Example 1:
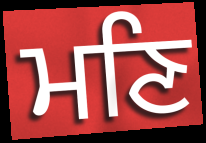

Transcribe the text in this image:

ਮਣਿ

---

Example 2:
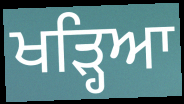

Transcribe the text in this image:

ਖੜ੍ਹਿਆ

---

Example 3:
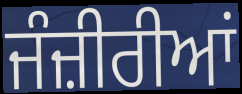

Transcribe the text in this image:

ਜੰਜ਼ੀਰੀਆਂ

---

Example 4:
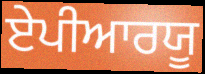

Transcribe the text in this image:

ਏਪੀਆਰਯੂ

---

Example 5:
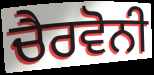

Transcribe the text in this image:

ਚੈਰਵੋਨੀ